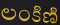
లంకిణి